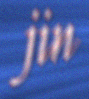
jin